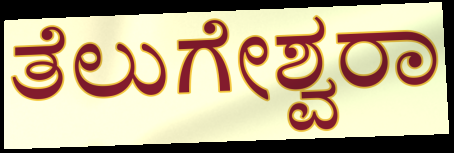
ತೆಲುಗೇಶ್ವರಾ